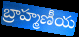
బ్రాహ్మణీయ